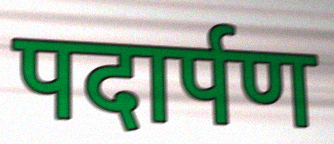
पदार्पण